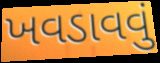
ખવડાવવું